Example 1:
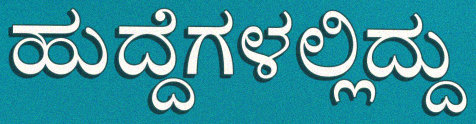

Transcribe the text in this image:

ಹುದ್ದೆಗಳಲ್ಲಿದ್ದು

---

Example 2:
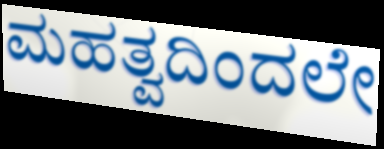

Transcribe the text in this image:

ಮಹತ್ವದಿಂದಲೇ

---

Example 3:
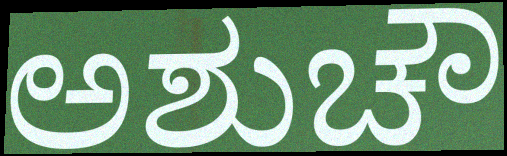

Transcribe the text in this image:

ಅಶುಚೌ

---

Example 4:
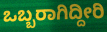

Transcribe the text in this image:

ಒಬ್ಬರಾಗಿದ್ದೀರಿ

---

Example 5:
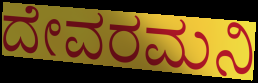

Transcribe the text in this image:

ದೇವರಮನಿ